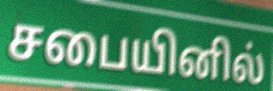
சபையினில்